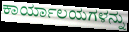
ಕಾರ್ಯಾಲಯಗಳನ್ನು